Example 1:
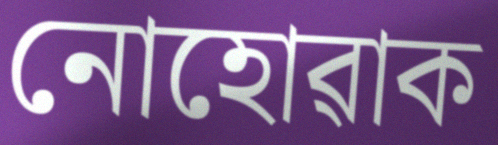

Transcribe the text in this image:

নোহোৱাক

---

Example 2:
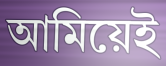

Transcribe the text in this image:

আমিয়েই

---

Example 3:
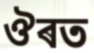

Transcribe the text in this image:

ঔৰত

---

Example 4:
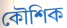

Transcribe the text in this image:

কৌশিক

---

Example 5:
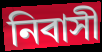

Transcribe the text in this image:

নিবাসী